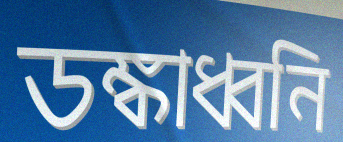
ডঙ্কাধ্বনি